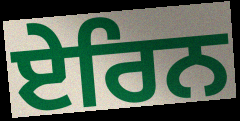
ਏਰਿਨ